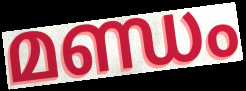
മണ്ഡം